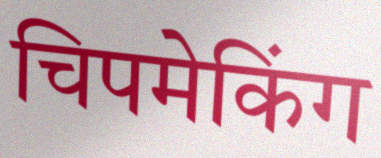
चिपमेकिंग